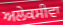
ਅਲੇਕਸੀਵਾ